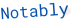
Notably